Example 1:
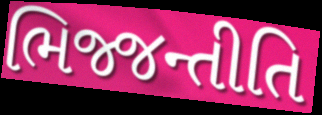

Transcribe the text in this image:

ભિજ્જન્તીતિ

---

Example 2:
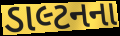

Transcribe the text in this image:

ડાલ્ટનના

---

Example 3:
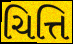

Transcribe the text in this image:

ચિત્તિ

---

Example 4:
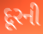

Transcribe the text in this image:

દૂરની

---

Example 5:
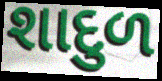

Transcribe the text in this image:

શાદુળ